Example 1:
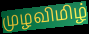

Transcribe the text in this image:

முழவிமிழ்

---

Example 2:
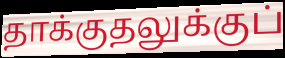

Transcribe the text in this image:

தாக்குதலுக்குப்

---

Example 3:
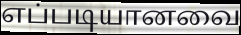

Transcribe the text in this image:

எப்படியானவை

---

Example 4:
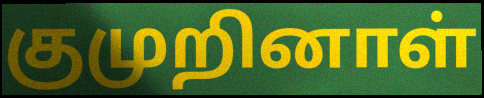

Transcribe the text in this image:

குமுறினாள்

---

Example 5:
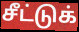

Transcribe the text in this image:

சீட்டுக்